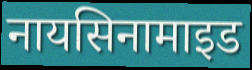
नायसिनामाइड